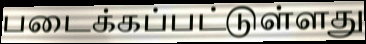
படைக்கப்பட்டுள்ளது